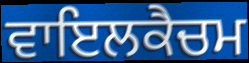
ਵਾਇਲਕੈਚਮ